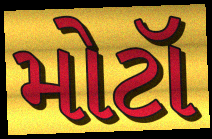
મોટૉ